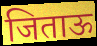
जिताऊ